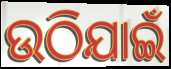
ଉଠିଯାଇଁ